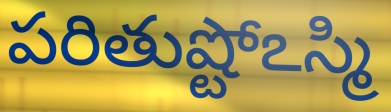
పరితుష్టోఽస్మి